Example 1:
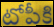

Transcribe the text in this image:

టోపీకి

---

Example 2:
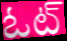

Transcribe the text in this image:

ఓట్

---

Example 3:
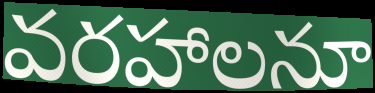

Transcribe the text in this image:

వరహాలనూ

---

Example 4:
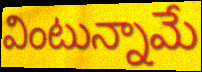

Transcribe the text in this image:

వింటున్నామే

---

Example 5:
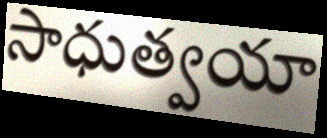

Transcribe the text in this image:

సాధుత్వయా